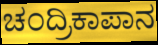
ಚಂದ್ರಿಕಾಪಾನ